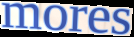
mores